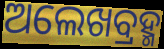
ଅଲେଖବ୍ରହ୍ମ